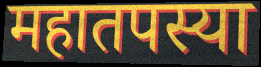
महातपस्या